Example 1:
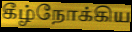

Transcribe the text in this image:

கீழ்நோக்கிய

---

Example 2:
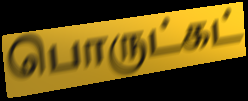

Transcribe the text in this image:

பொருட்கட்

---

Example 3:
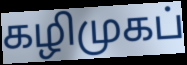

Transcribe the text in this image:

கழிமுகப்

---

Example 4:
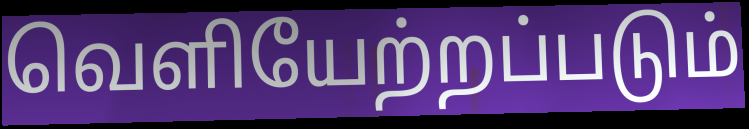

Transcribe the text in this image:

வெளியேற்றப்படும்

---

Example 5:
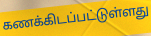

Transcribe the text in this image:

கணக்கிடப்பட்டுள்ளது